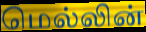
மெல்லின்